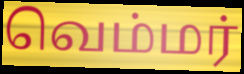
வெம்மர்